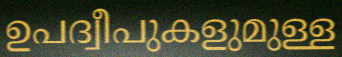
ഉപദ്വീപുകളുമുള്ള